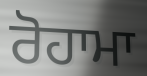
ਰੋਹਾਮਾ